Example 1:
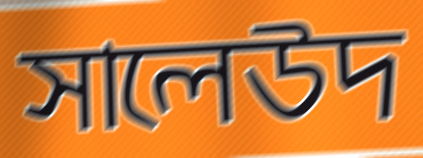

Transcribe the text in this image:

সালেউদ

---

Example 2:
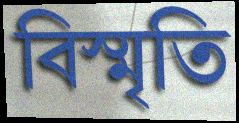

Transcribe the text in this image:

বিস্মৃতি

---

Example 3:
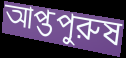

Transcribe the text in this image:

আপ্তপুরুষ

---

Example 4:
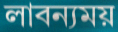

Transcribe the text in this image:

লাবন্যময়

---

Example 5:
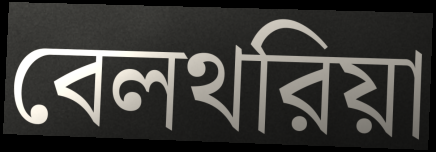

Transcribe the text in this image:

বেলথরিয়া